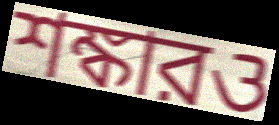
শঙ্কারও